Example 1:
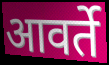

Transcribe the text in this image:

आवर्ते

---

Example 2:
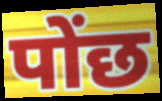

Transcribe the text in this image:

पोंछ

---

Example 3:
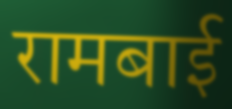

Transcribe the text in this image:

रामबाई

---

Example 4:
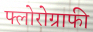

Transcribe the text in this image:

फ्लोरोग्राफी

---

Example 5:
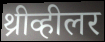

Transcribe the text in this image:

थ्रीव्हीलर